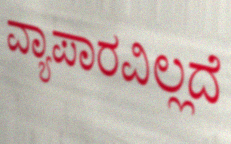
ವ್ಯಾಪಾರವಿಲ್ಲದೆ